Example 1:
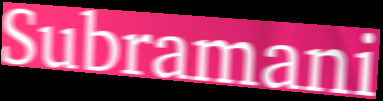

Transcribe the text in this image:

Subramani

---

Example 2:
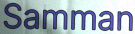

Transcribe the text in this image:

Samman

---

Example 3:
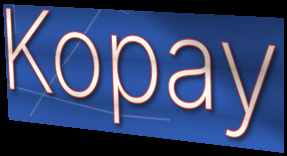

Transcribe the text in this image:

Kopay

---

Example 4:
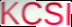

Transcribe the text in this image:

KCSI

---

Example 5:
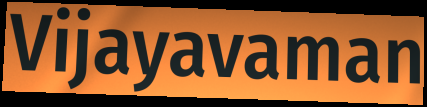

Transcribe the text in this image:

Vijayavaman